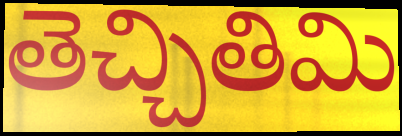
తెచ్చితిమి